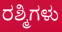
ರಶ್ಮಿಗಳು